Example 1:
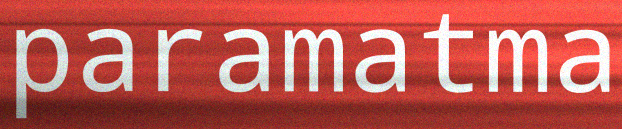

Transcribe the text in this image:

paramatma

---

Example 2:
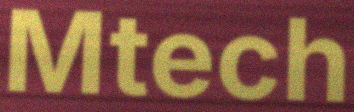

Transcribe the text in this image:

Mtech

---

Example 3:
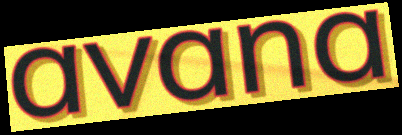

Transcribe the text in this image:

avana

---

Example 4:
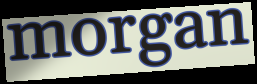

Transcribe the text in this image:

morgan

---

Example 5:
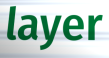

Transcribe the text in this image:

layer